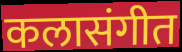
कलासंगीत